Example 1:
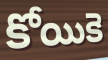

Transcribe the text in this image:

కోయికె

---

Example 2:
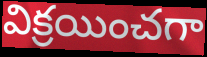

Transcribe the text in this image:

విక్రయించగా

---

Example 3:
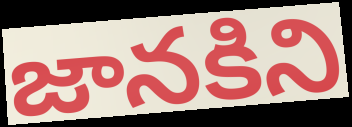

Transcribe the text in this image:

జానకిని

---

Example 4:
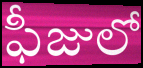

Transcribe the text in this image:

ఫీజులో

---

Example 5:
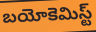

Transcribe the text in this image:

బయోకెమిస్ట్